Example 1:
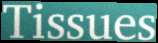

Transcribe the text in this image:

Tissues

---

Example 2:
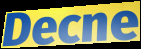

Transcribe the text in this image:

Decne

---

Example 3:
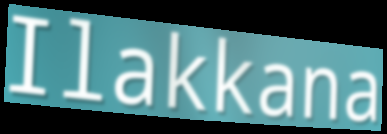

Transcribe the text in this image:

Ilakkana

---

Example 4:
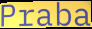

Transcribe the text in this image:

Praba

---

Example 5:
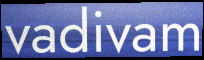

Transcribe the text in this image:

vadivam